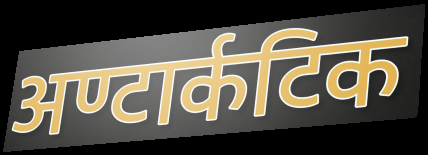
अण्टार्कटिक